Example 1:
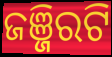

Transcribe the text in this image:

ଜଞ୍ଜିରଟି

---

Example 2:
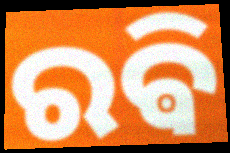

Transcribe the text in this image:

ରଵି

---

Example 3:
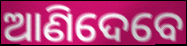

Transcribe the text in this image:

ଆଣିଦେବେ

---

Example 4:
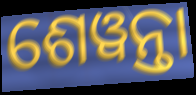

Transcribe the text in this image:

ଶେୱନ୍ତା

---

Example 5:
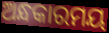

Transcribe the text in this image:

ଅନ୍ଧକାରମୟ